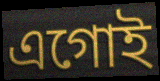
এগোই